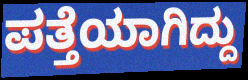
ಪತ್ತೆಯಾಗಿದ್ದು